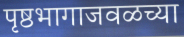
पृष्ठभागाजवळच्या